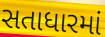
સતાધારમાં